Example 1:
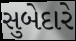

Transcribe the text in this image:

સુબેદારે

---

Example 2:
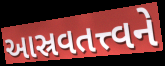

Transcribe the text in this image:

આસ્રવતત્ત્વને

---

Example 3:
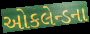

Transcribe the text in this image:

ઓકલેન્ડના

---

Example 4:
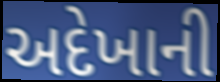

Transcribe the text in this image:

અદેખાની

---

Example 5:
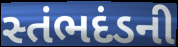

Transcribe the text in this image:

સ્તંભદંડની